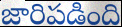
జారిపడింది